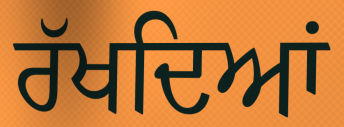
ਰੱਖਦਿਆਂ